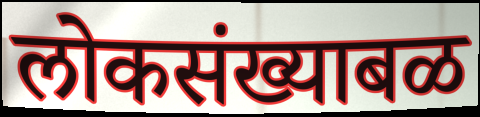
लोकसंख्याबळ